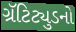
ગ્રૅટિટ્યુડનો